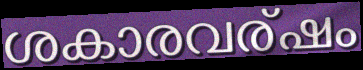
ശകാരവര്ഷം